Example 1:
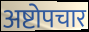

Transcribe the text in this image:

अष्टोपचार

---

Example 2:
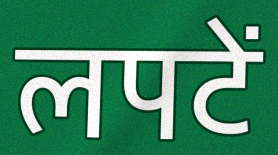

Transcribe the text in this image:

लपटें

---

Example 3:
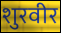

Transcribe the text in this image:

शुरवीर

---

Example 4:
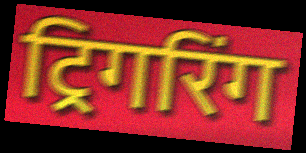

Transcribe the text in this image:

ट्रिगरिंग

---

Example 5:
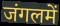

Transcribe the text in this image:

जंगलमें